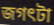
জগৎটা